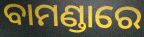
ବାମଣ୍ଡାରେ